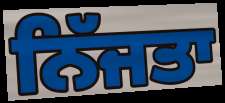
ਨਿੱਜਤਾ